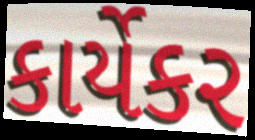
કાર્યેકર